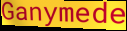
Ganymede